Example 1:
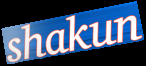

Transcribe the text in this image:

shakun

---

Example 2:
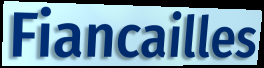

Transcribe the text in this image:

Fiancailles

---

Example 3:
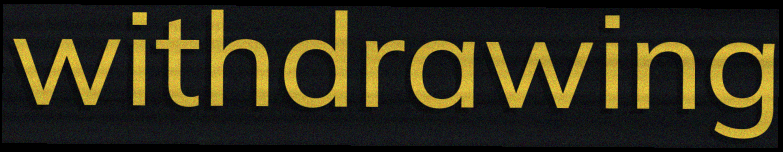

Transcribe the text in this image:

withdrawing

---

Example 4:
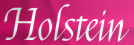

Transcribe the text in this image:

Holstein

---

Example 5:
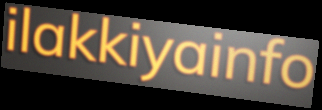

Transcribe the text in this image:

ilakkiyainfo